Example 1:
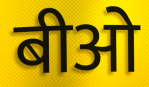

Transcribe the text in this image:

बीओ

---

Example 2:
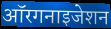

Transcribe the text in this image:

ऑरगनाइजेशन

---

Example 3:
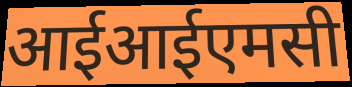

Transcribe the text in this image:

आईआईएमसी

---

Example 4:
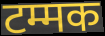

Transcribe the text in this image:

टम्मक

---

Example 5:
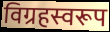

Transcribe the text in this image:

विग्रहस्वरूप